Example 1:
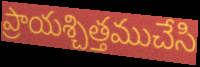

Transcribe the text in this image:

ప్రాయశ్చిత్తముచేసి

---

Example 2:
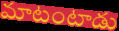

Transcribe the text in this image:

మాటంటాడు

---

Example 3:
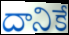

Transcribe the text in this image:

దానికే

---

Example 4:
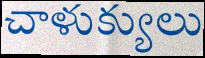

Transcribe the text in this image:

చాళుక్యులు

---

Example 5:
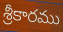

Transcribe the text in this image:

శ్రీకారము